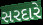
સરદારે